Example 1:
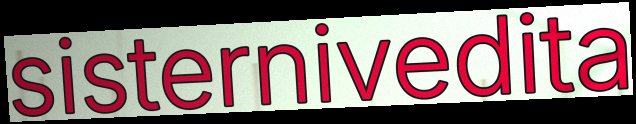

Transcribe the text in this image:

sisternivedita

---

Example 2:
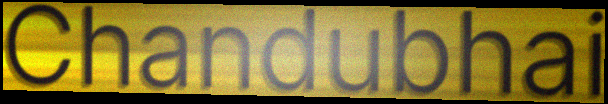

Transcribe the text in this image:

Chandubhai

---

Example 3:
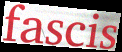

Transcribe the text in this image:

fascis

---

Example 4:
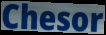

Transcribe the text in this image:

Chesor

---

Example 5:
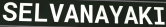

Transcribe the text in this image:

SELVANAYAKI